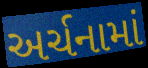
અર્ચનામાં